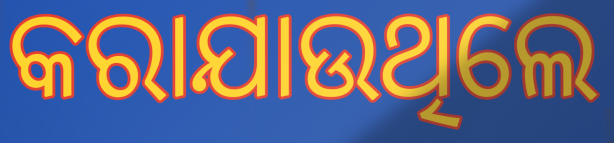
କରାଯାଉଥିଲେ